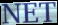
NET